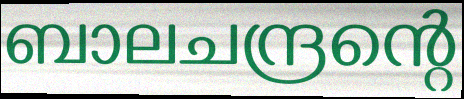
ബാലചന്ദ്രന്റെ